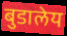
बुडालेय